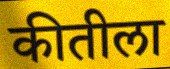
कीतीला